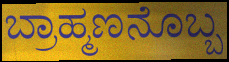
ಬ್ರಾಹ್ಮಣನೊಬ್ಬ